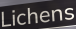
Lichens